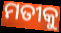
ମତୀକୁ